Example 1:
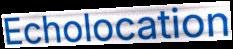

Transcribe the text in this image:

Echolocation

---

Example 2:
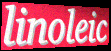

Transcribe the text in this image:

linoleic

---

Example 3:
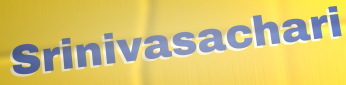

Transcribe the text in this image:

Srinivasachari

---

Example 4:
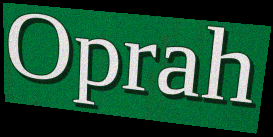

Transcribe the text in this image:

Oprah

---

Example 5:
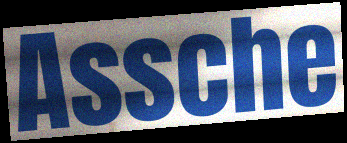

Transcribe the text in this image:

Assche